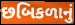
છબિકળાનું